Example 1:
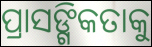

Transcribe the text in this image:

ପ୍ରାସଙ୍ଗିକତାକୁ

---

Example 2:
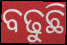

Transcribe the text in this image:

ବଢୁଛି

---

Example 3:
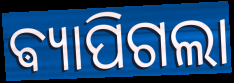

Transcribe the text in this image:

ଵ୍ୟାପିଗଲା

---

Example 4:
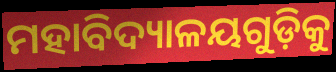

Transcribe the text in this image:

ମହାବିଦ୍ୟାଳୟଗୁଡ଼ିକୁ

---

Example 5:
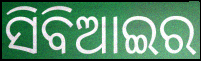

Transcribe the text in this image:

ସିବିଆଇର